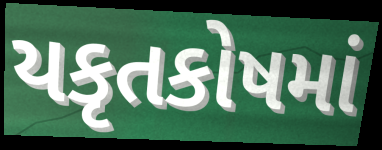
યકૃતકોષમાં